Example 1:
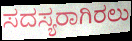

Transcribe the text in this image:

ಸದಸ್ಯರಾಗಿರಲು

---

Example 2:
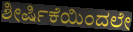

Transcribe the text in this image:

ಶೀರ್ಷಿಕೆಯಿಂದಲೇ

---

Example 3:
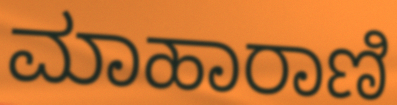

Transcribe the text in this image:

ಮಾಹಾರಾಣಿ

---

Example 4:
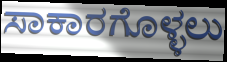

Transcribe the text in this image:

ಸಾಕಾರಗೊಳ್ಳಲು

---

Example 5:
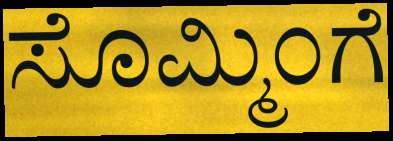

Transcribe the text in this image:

ಸೊಮ್ಮಿಂಗೆ